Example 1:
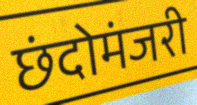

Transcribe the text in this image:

छंदोमंजरी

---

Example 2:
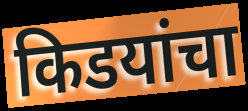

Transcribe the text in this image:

किडयांचा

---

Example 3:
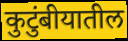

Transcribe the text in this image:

कुटुंबीयातील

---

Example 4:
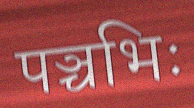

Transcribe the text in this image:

पञ्चभिः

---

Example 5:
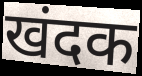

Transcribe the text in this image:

खंदक